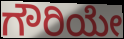
ಗೌರಿಯೇ